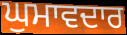
ਘੁਮਾਵਦਾਰ